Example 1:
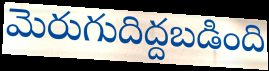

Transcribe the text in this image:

మెరుగుదిద్దబడింది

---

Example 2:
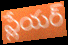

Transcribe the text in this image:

ప్లేయర్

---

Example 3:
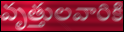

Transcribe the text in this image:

వృత్తులవారికి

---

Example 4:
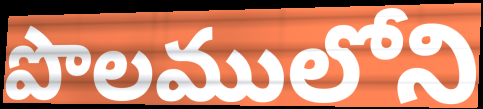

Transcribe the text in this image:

పొలములోని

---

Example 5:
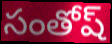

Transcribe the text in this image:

సంతోష్